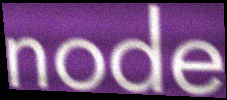
node